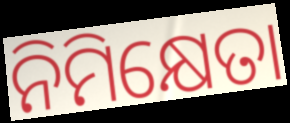
ନିମିକ୍ଷେତା